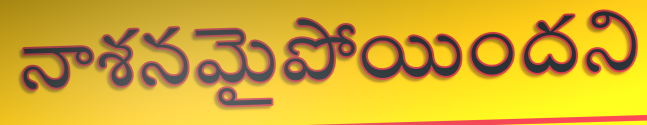
నాశనమైపోయిందని